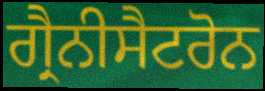
ਗ੍ਰੈਨੀਸੈਟਰੋਨ